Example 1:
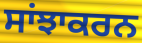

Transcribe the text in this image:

ਸਾਂਝਾਕਰਨ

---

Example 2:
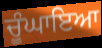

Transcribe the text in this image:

ਚੂੰਘਾਇਆ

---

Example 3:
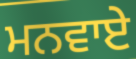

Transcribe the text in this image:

ਮਨਵਾਏ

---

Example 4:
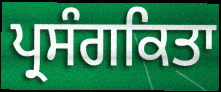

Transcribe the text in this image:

ਪ੍ਰਸੰਗਕਿਤਾ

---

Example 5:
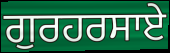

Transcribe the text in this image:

ਗੁਰਹਰਸਾਏ